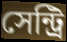
সেন্ট্রি